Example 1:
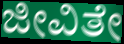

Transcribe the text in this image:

ಜೀವಿತೇ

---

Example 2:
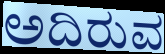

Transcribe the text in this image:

ಅದಿರುವ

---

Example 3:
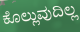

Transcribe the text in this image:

ಕೊಲ್ಲುವುದಿಲ್ಲ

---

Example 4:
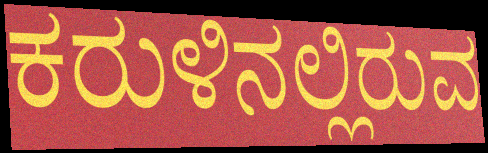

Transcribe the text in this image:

ಕರುಳಿನಲ್ಲಿರುವ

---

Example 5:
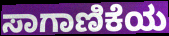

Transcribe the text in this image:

ಸಾಗಾಣಿಕೆಯ